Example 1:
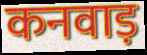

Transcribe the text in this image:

कनवाड़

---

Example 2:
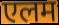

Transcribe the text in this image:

एलम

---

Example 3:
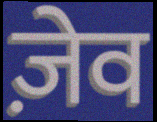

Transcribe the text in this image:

ज़ेव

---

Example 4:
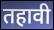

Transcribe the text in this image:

तहावी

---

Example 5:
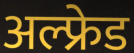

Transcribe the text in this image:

अल्फ्रेड